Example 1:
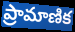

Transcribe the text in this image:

ప్రామాణిక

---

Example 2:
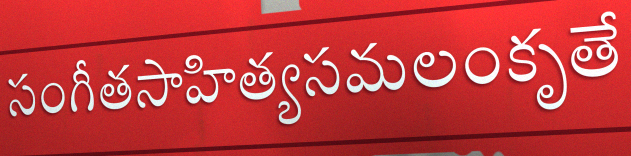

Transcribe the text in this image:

సంగీతసాహిత్యసమలంకృతే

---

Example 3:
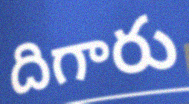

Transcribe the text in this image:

దిగారు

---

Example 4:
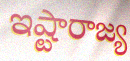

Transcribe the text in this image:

ఇష్టారాజ్య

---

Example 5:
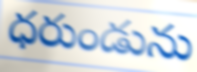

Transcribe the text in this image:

ధరుండును